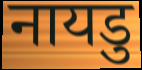
नायडु